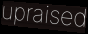
upraised